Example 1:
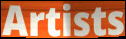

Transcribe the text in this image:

Artists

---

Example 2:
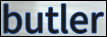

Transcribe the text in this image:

butler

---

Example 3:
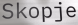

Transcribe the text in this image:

Skopje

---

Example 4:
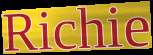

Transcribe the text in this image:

Richie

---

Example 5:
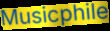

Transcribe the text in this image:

Musicphile